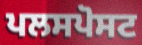
ਪਲਸਪੋਸਟ